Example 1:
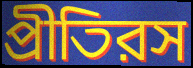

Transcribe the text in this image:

প্রীতিরস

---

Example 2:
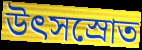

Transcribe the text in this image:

উৎসস্রোত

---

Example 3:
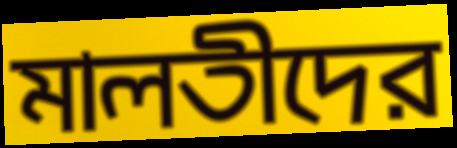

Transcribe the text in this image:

মালতীদের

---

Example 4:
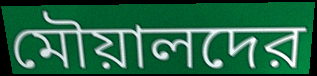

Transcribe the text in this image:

মৌয়ালদের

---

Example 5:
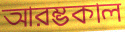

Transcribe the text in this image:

আরম্ভকাল